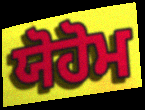
ਯੋਹੋਮ